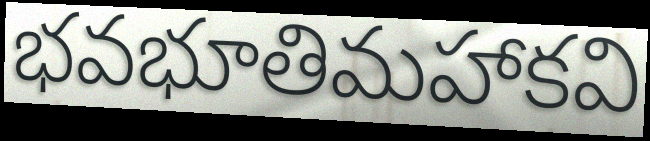
భవభూతిమహాకవి